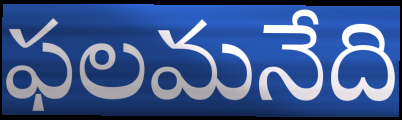
ఫలమనేది